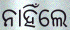
ନାହିଁଲେ